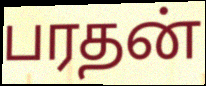
பரதன்